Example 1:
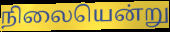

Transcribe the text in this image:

நிலையென்று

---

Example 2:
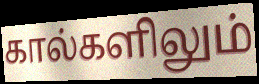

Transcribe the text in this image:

கால்களிலும்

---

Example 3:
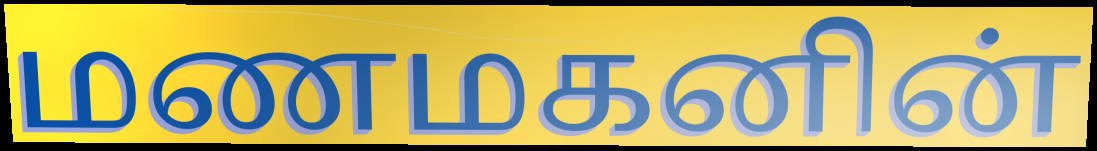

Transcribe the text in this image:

மணமகனின்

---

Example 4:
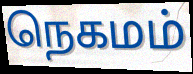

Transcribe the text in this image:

நெகமம்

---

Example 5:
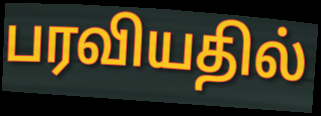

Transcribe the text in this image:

பரவியதில்